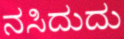
ನಸಿದುದು